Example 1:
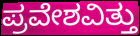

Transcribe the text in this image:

ಪ್ರವೇಶವಿತ್ತು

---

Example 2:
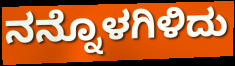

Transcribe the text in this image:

ನನ್ನೊಳಗಿಳಿದು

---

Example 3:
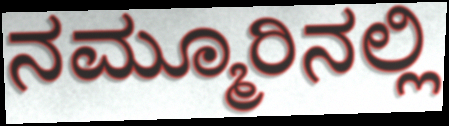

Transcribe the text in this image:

ನಮ್ಮೂರಿನಲ್ಲಿ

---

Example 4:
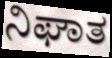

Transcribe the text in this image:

ನಿಘಾತ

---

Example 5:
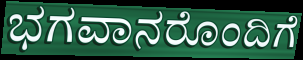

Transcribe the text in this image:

ಭಗವಾನರೊಂದಿಗೆ